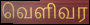
வெளிவர